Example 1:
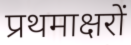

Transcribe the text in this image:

प्रथमाक्षरों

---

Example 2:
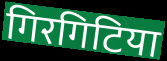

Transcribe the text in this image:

गिरगिटिया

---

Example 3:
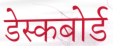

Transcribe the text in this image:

डेस्कबोर्ड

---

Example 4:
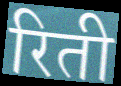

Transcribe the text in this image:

रिती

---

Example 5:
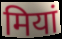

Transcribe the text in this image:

मियां